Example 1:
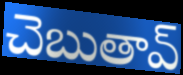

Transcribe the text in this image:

చెబుతావ్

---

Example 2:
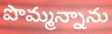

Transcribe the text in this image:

పొమ్మన్నాను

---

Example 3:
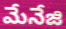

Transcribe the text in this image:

మేనేజి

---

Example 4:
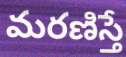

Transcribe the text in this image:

మరణిస్తే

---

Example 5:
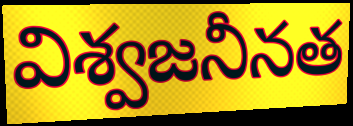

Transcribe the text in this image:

విశ్వజనీనత